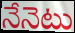
నేనెటు